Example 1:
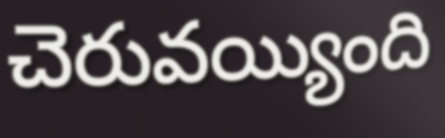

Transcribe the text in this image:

చెరువయ్యింది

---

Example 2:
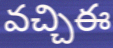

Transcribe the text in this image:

వచ్చిఈ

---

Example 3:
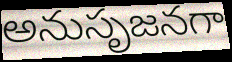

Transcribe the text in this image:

అనుసృజనగా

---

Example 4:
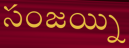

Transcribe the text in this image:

సంజయ్ని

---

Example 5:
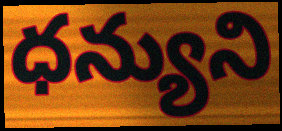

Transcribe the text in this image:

ధన్యుని